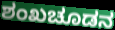
ಶಂಖಚೂಡನ